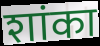
शांका